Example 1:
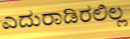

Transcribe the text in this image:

ಎದುರಾಡಿರಲಿಲ್ಲ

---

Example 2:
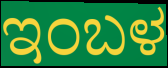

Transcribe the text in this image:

ಇಂಬಳ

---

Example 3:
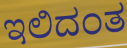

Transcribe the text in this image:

ಇಲಿದಂತ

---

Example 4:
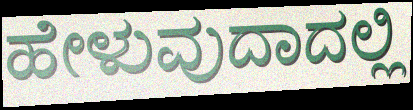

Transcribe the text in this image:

ಹೇಳುವುದಾದಲ್ಲಿ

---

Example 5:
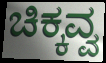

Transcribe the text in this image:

ಚಿಕ್ಕವ್ವ